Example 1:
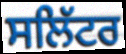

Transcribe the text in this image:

ਸਲਿੱਟਰ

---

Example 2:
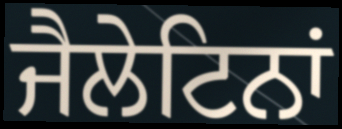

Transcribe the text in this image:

ਜੈਲੇਟਿਨਾਂ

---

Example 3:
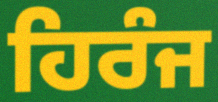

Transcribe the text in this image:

ਹਿਰੰਜ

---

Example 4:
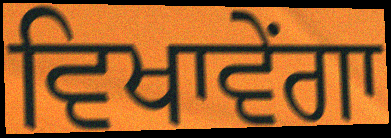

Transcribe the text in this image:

ਵਿਖਾਵੇਂਗਾ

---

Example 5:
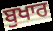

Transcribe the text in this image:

ਬੁਖਾਰ